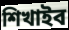
শিখাইব